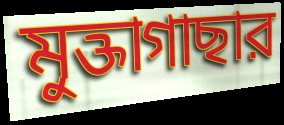
মুক্তাগাছার